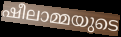
ഷീലാമ്മയുടെ